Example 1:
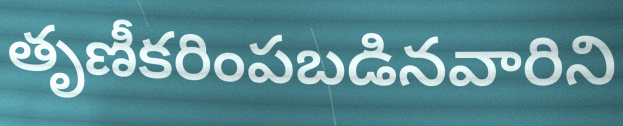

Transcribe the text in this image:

తృణీకరింపబడినవారిని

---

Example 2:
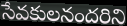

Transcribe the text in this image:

సేవకులనందరిని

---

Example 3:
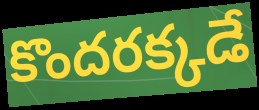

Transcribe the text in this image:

కొందరక్కడే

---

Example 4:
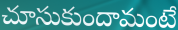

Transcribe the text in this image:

చూసుకుందామంటే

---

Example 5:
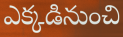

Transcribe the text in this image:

ఎక్కడినుంచి